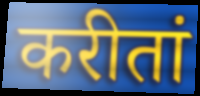
करीतां